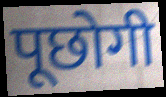
पूछोगी